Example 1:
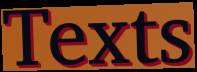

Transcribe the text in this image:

Texts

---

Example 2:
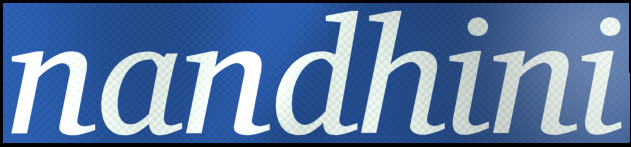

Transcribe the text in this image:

nandhini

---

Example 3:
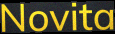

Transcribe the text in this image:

Novita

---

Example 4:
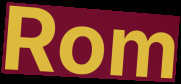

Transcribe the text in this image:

Rom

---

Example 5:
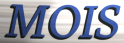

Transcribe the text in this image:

MOIS